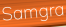
Samgra